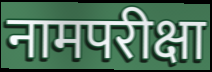
नामपरीक्षा